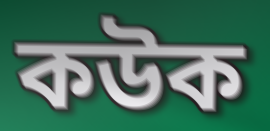
কউক